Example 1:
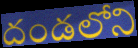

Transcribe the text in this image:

దండలోని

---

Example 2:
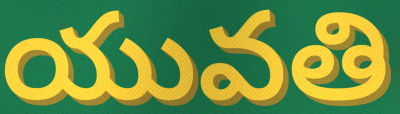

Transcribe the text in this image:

యువతి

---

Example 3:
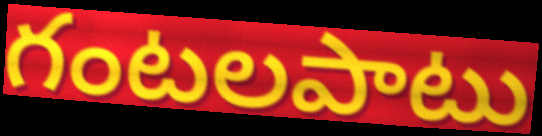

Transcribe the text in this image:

గంటలపాటు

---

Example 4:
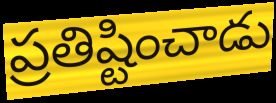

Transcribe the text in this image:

ప్రతిష్టించాడు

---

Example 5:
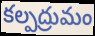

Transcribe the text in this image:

కల్పద్రుమం